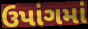
ઉપાંગમાં